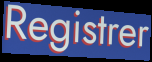
Registrer